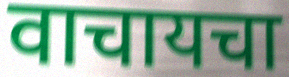
वाचायचा